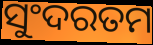
ସୁଂଦରତମ